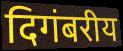
दिगंबरीय